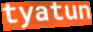
tyatun